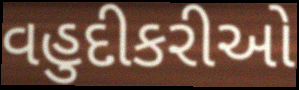
વહુદીકરીઓ